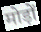
मोड़ों